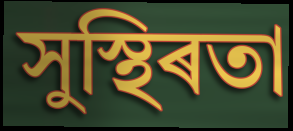
সুস্থিৰতা